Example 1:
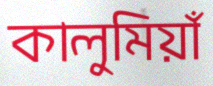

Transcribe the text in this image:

কালুমিয়াঁ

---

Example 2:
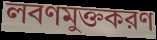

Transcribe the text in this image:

লবণমুক্তকরণ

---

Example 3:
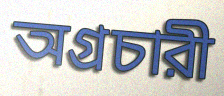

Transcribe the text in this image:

অগ্রচারী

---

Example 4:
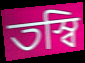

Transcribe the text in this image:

তস্বি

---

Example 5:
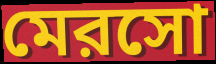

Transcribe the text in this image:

মেরসো